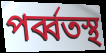
পর্ব্বতস্থ